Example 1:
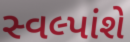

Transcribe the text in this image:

સ્વલ્પાંશે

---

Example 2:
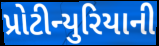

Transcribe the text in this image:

પ્રોટીન્યુરિયાની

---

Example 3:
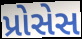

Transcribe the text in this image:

પ્રોસેસ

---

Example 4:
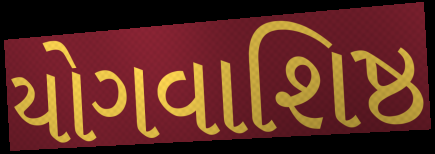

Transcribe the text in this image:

યોગવાશિષ્ઠ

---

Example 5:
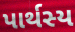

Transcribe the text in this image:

પાર્થસ્ય